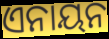
ଏନାୟନ